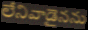
లేనివాడైనను